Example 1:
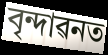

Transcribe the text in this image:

বৃন্দাৱনত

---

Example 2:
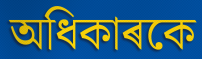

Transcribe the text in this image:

অধিকাৰকে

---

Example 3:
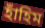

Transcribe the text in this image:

হাঁহিম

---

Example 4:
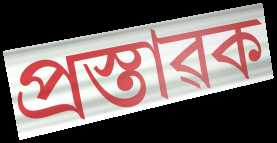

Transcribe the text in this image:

প্ৰস্তাৱক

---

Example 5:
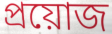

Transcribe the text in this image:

প্ৰয়োজ